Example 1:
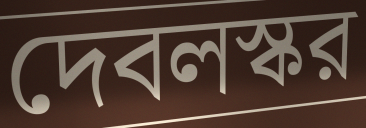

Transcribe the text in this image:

দেবলস্কর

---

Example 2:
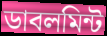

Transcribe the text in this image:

ডাবলমিন্ট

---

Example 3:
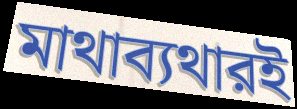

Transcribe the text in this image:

মাথাব্যথারই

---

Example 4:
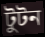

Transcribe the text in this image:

টুটন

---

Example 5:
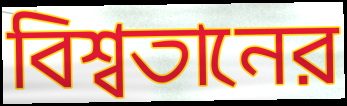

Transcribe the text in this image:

বিশ্বতানের